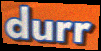
durr